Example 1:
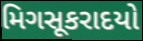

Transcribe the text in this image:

મિગસૂકરાદયો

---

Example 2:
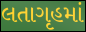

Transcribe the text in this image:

લતાગૃહમાં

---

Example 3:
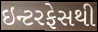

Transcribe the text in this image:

ઇન્ટરફેસથી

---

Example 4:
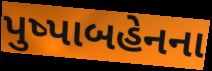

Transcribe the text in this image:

પુષ્પાબહેનના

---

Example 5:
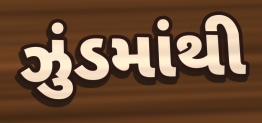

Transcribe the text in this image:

ઝુંડમાંથી